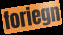
foriegn